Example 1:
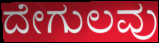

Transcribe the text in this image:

ದೇಗುಲವು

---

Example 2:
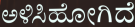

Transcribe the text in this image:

ಅಳಿಸಿಹೋಗಿದೆ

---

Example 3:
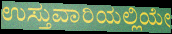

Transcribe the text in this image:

ಉಸ್ತುವಾರಿಯಲ್ಲಿಯೇ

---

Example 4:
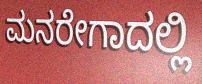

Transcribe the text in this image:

ಮನರೇಗಾದಲ್ಲಿ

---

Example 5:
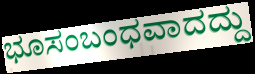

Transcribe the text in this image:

ಭೂಸಂಬಂಧವಾದದ್ದು